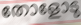
തോളോടു